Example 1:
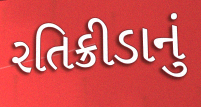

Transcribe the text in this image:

રતિક્રીડાનું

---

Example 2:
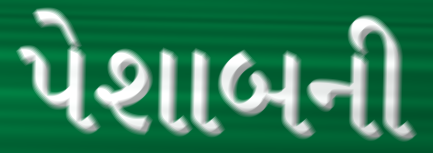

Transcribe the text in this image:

પેશાબની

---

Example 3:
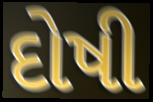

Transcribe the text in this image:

દોષી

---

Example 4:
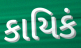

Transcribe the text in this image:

કાયિકં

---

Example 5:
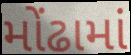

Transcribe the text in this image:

મોંઢામાં